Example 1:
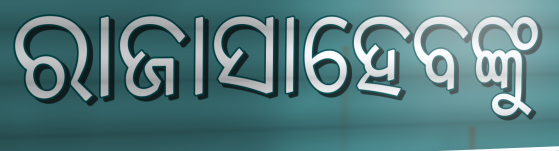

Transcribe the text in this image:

ରାଜାସାହେବଙ୍କୁ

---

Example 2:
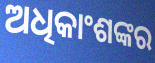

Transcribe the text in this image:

ଅଧିକାଂଶଙ୍କର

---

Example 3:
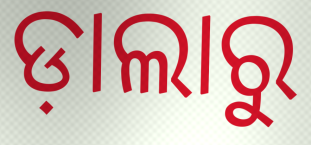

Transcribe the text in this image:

ଡ଼ାଲାରୁ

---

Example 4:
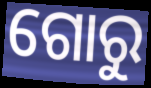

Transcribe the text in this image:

ଗୋରୁ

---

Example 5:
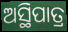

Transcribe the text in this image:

ଅସ୍ଥିପାତ୍ର